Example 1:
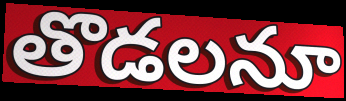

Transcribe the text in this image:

తొడలనూ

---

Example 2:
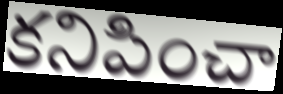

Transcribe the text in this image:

కనిపించా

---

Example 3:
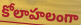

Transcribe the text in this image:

కోలాహలంగా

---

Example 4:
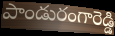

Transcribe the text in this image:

పాండురంగారెడ్డి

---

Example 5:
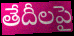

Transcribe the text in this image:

తేదీలపై